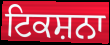
ਟਿਕਸ਼ਨਾ